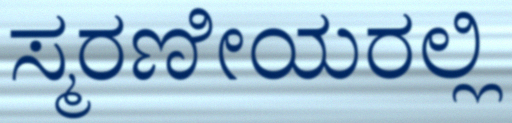
ಸ್ಮರಣೀಯರಲ್ಲಿ